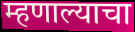
म्हणाल्याचा